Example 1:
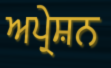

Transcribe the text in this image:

ਅਪ੍ਰੇਸ਼ਨ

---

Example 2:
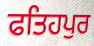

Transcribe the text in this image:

ਫਤਿਹਪੁਰ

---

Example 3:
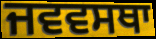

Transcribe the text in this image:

ਜਵਵਸਥਾ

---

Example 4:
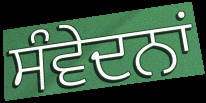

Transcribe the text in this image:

ਸੰਵੇਦਨਾਂ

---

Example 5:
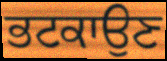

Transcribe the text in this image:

ਭਟਕਾਉਣ